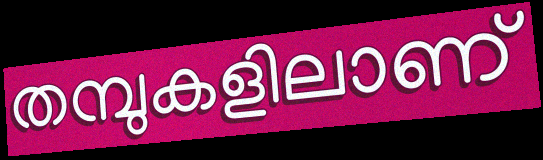
തമ്പുകളിലാണ്